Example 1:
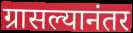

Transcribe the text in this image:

ग्रासल्यानंतर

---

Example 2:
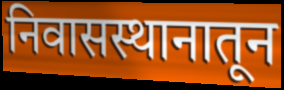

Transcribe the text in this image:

निवासस्थानातून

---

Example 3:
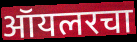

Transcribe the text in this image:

ऑयलरचा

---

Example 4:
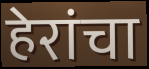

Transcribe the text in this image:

हेरांचा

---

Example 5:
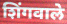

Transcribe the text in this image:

शिंगवाले